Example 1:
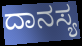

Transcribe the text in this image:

ದಾನಸ್ಯ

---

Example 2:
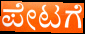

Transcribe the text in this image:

ಪೇಟಗೆ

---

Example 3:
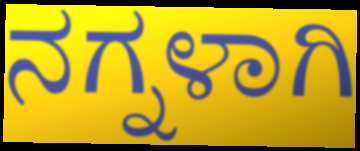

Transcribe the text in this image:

ನಗ್ನಳಾಗಿ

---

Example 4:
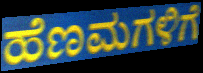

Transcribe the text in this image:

ಹೆಣಮಗಳಿಗೆ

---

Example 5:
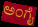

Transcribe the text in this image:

ಅಂಗೈ